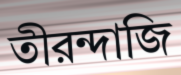
তীরন্দাজি